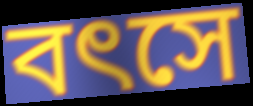
বৎসে